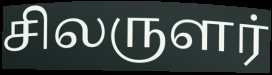
சிலருளர்